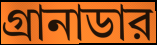
গ্রানাডার